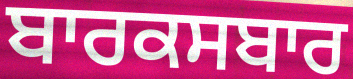
ਬਾਰਕਸਬਾਰ